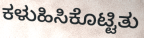
ಕಳುಹಿಸಿಕೊಟ್ಟಿತು